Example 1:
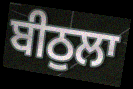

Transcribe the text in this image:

ਬੀਠੁਲਾ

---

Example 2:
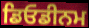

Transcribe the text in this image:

ਡਿਓਡੀਨਮ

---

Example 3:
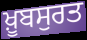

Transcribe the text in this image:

ਖ਼ੂਬਸੁਰਤ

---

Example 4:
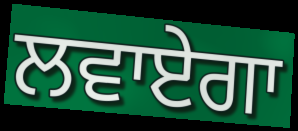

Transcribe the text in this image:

ਲਵਾਏਗਾ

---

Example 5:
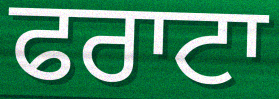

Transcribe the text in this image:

ਫਰਾਟਾ